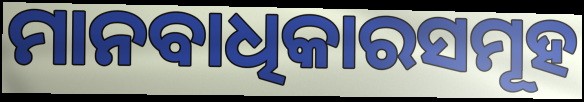
ମାନବାଧିକାରସମୂହ